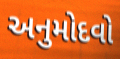
અનુમોદવો